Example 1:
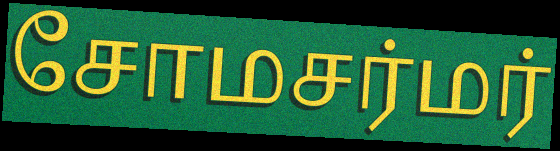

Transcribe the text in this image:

சோமசர்மர்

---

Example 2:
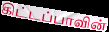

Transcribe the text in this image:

கிட்டப்பாவின்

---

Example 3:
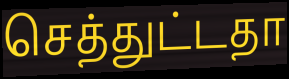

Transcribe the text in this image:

செத்துட்டதா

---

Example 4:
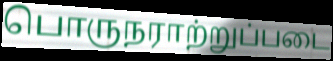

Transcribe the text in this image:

பொருநராற்றுப்படை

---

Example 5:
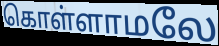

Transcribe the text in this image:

கொள்ளாமலே